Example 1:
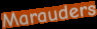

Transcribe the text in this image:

Marauders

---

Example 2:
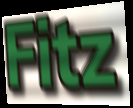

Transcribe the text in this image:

Fitz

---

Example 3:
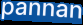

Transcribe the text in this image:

pannan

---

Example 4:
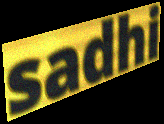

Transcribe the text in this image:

sadhi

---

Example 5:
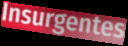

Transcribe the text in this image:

Insurgentes